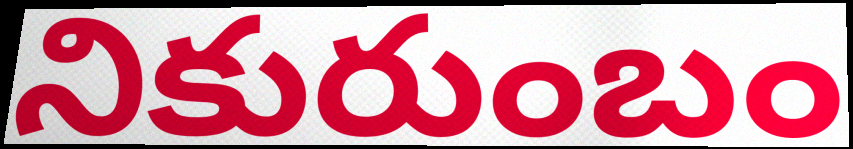
నికురుంబం